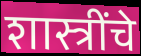
शास्त्रींचे